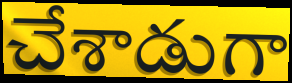
చేశాడుగా